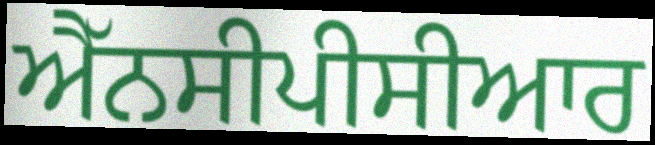
ਐੱਨਸੀਪੀਸੀਆਰ